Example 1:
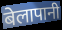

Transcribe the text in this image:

बेलापानी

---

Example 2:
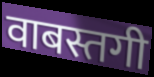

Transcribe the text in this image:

वाबस्तगी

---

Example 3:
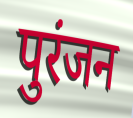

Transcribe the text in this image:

पुरंजन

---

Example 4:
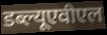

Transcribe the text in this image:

डब्ल्यूएवीएल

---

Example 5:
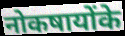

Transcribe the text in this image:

नोकषायोंके